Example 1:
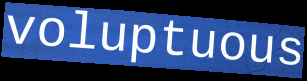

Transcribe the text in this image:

voluptuous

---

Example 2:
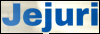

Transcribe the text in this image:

Jejuri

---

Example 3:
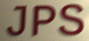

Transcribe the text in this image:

JPS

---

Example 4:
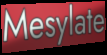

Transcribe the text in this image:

Mesylate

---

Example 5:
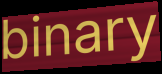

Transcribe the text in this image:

binary